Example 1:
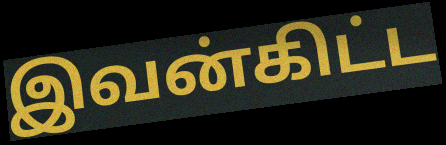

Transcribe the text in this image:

இவன்கிட்ட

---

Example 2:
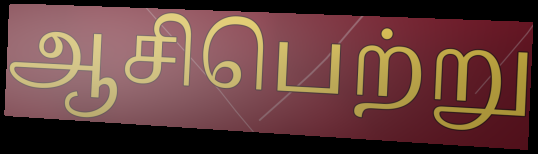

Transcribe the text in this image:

ஆசிபெற்று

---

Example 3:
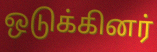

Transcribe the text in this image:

ஒடுக்கினர்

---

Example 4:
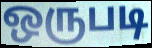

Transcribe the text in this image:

ஒருபடி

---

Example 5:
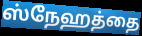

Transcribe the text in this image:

ஸ்நேஹத்தை